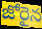
జోరైన